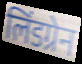
लिंडग्रेन